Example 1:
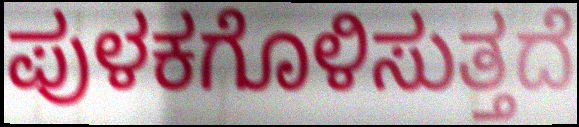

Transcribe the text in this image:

ಪುಳಕಗೊಳಿಸುತ್ತದೆ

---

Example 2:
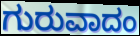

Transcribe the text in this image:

ಗುರುವಾದಂ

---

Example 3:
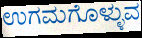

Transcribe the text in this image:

ಉಗಮಗೊಳ್ಳುವ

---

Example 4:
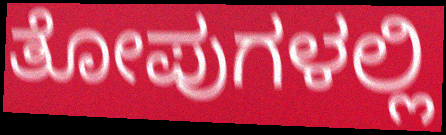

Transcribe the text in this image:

ತೋಪುಗಳಲ್ಲಿ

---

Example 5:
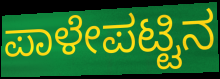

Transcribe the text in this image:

ಪಾಳೇಪಟ್ಟಿನ